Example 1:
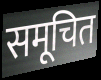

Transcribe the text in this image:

समूचित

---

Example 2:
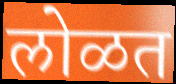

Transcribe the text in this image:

लोळत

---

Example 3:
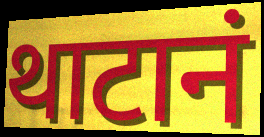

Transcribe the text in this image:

थाटानं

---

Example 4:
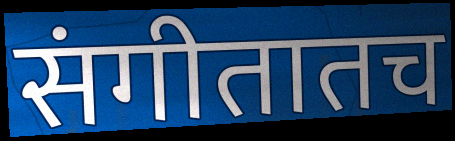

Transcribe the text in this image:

संगीतातच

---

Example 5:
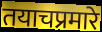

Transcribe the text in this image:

तयाचप्रमारे